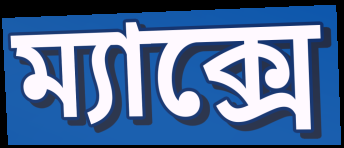
ম্যাক্সে